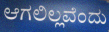
ಆಗಲಿಲ್ಲವೆಂದು